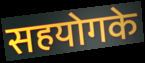
सहयोगके